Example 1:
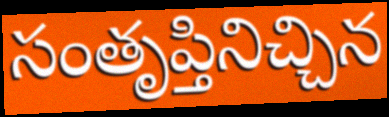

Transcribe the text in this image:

సంతృప్తినిచ్చిన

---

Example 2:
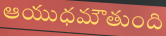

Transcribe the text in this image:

ఆయుధమౌతుంది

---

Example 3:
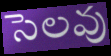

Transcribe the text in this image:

సెలవు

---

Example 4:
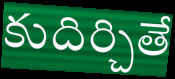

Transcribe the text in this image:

కుదిర్చితే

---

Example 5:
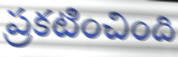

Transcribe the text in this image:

ప్రకటించింది